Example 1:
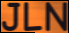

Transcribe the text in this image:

JLN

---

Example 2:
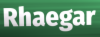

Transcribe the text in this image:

Rhaegar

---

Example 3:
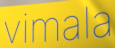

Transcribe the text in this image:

vimala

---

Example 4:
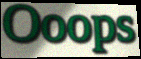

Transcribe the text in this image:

Ooops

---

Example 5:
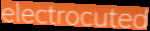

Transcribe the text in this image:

electrocuted